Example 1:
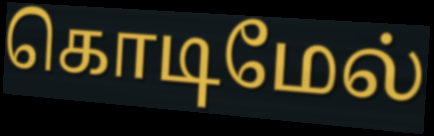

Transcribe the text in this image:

கொடிமேல்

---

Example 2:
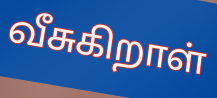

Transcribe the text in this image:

வீசுகிறாள்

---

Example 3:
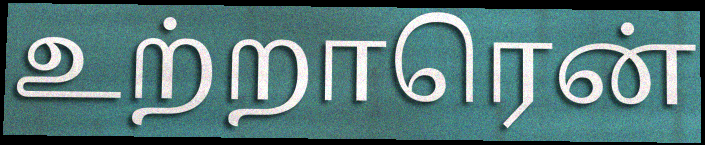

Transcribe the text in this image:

உற்றாரென்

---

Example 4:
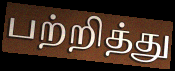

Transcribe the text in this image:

பற்றித்து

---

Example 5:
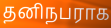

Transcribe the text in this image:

தனிநபராக